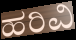
ಹರಿವಿ